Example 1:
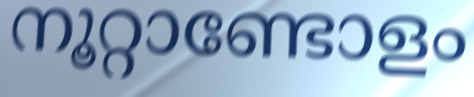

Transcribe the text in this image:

നൂറ്റാണ്ടോളം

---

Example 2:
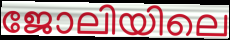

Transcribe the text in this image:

ജോലിയിലെ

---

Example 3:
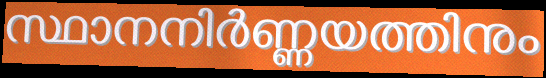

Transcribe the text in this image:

സ്ഥാനനിർണ്ണയത്തിനും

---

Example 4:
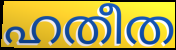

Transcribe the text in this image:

ഹതീത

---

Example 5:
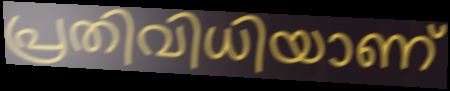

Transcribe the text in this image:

പ്രതിവിധിയാണ്